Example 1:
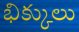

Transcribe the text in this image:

భిక్కులు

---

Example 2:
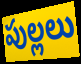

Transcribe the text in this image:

పుల్లలు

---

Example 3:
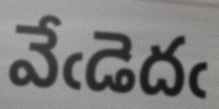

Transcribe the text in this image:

వేఁడెదఁ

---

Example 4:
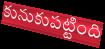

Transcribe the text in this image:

కునుకుపట్టింది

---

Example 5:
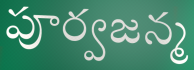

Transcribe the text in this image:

పూర్వజన్మ